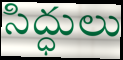
సిద్ధులు